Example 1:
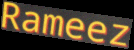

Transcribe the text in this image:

Rameez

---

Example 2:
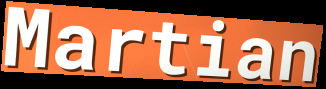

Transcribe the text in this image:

Martian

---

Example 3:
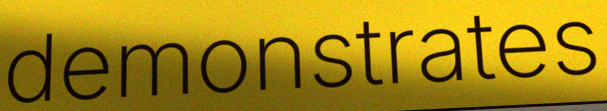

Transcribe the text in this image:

demonstrates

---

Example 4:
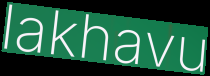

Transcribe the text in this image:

lakhavu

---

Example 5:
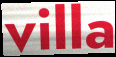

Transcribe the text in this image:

villa